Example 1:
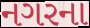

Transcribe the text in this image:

નગરના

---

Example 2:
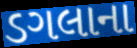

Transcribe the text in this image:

ડગલાના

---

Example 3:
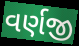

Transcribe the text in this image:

વર્ણજી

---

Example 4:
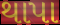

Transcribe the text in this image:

થાપા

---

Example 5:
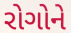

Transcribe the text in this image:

રોગોને